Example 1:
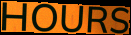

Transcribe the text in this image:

HOURS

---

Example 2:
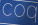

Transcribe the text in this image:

coq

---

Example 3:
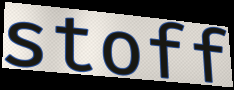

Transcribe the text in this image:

stoff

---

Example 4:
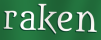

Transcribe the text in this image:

raken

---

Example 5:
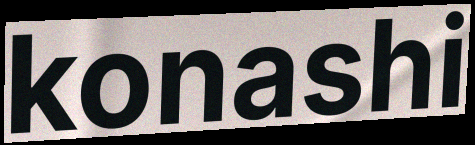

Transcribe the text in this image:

konashi